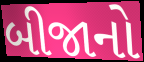
બીજાનો